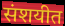
संशयीत